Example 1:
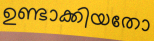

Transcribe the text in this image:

ഉണ്ടാക്കിയതോ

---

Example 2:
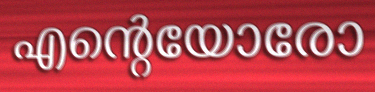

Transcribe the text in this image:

എന്റെയോരോ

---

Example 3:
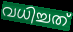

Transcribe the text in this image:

വധിച്ചത്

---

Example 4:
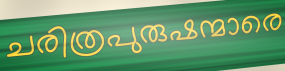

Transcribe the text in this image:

ചരിത്രപുരുഷന്മാരെ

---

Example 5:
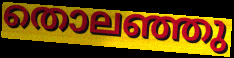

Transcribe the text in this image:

തൊലഞ്ഞു